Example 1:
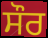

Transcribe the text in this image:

ਸੌਰ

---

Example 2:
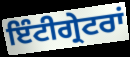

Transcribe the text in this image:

ਇੰਟੀਗ੍ਰੇਟਰਾਂ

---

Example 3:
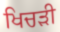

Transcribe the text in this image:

ਖਿਚੜੀ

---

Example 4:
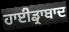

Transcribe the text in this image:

ਹਾਈਡ੍ਰਾਬਾਦ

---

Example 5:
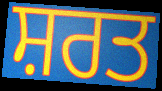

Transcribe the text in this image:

ਸ਼ਰਤ